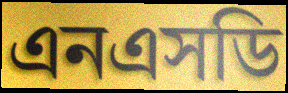
এনএসডি